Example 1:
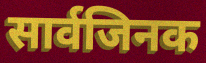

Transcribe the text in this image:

सार्वजिनक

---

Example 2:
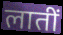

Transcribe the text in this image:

लातीं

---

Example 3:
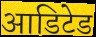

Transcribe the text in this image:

आडिटेड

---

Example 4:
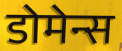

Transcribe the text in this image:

डोमेन्स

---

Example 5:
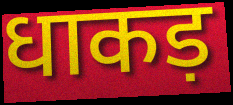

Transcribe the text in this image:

धाकड़